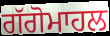
ਗੱਗੋਮਾਹਲ